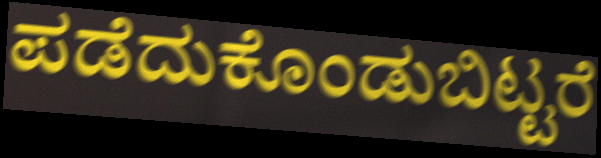
ಪಡೆದುಕೊಂಡುಬಿಟ್ಟರೆ